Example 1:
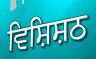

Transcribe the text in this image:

ਵਿਸ਼ਿਸ਼ਠ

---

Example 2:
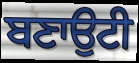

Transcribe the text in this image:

ਬਣਾਉਟੀ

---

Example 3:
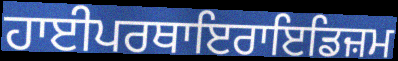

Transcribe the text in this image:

ਹਾਈਪਰਥਾਇਰਾਇਡਿਜ਼ਮ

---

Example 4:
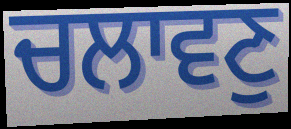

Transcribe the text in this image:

ਚਲਾਵਣੁ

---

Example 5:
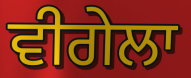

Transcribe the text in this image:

ਵੀਗੇਲਾ